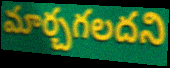
మార్చగలదని